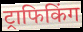
ट्राफिकिंग